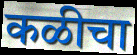
कळीचा